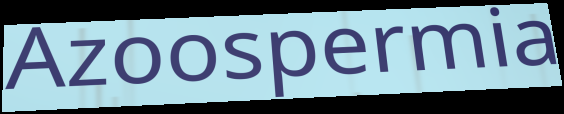
Azoospermia